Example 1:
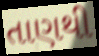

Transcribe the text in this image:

તાણથી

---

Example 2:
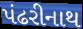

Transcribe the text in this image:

પંઢરીનાથ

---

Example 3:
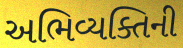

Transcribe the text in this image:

અભિવ્યક્તિની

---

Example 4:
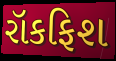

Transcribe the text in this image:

રૉકફિશ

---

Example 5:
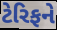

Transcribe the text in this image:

ટેરિફને